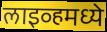
लाइव्हमध्ये